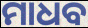
ମାଧବ